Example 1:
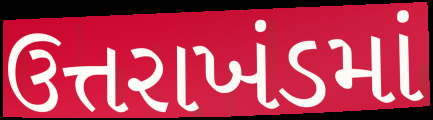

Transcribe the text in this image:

ઉત્તરાખંડમાં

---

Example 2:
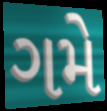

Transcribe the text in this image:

ગમે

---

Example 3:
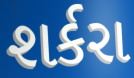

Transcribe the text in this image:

શર્કરા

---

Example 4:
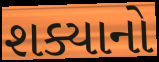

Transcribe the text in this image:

શક્યાનો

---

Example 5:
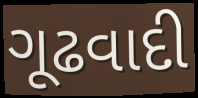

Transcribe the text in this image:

ગૂઢવાદી